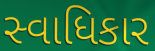
સ્વાધિકાર